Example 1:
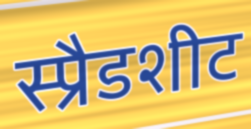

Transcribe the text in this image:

स्प्रैडशीट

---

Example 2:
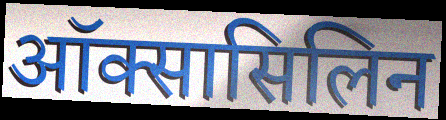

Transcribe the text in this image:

ऑक्सासिलिन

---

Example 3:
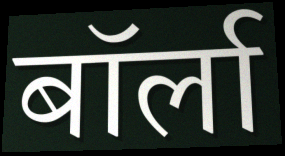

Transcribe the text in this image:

बॉर्ला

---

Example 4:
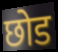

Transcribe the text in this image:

छोड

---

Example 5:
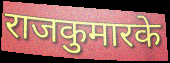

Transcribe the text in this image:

राजकुमारके